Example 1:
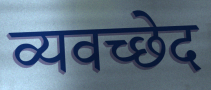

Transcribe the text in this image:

व्यवच्छेद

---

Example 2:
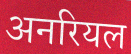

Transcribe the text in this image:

अनरियल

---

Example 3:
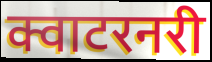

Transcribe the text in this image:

क्वाटरनरी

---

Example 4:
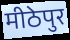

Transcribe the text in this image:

मीठेपुर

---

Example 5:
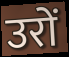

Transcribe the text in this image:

उरों